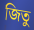
জিতু